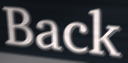
Back